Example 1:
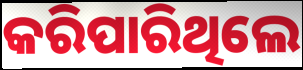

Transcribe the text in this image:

କରିପାରିଥିଲେ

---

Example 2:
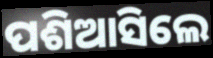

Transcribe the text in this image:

ପଶିଆସିଲେ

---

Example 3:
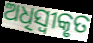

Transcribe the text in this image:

ଅଧିସ୍ୱୀକୃତ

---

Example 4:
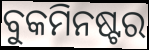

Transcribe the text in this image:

ବୁକମିନଷ୍ଟର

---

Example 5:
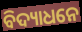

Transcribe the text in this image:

ବିଦ୍ୟାଧନେ